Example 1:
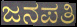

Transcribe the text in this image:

ಜನಪತಿ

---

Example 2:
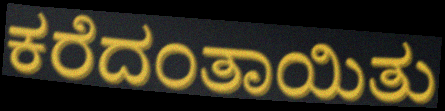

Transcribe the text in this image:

ಕರೆದಂತಾಯಿತು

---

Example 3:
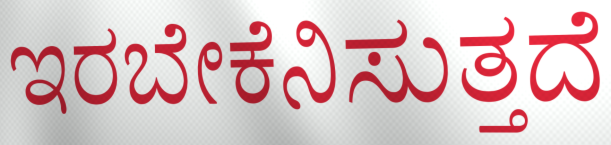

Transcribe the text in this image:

ಇರಬೇಕೆನಿಸುತ್ತದೆ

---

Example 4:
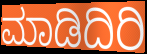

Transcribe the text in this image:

ಮಾಡಿದಿರಿ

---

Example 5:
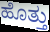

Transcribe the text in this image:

ಹೊತ್ತು